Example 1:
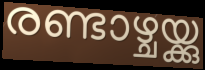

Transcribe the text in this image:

രണ്ടാഴ്ചയ്ക്കു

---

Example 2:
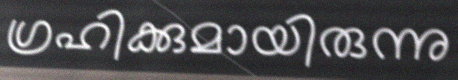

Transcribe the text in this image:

ഗ്രഹിക്കുമായിരുന്നു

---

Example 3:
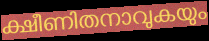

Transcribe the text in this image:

ക്ഷീണിതനാവുകയും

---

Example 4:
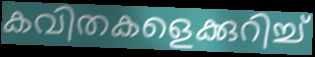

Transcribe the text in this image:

കവിതകളെക്കുറിച്ച്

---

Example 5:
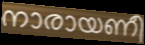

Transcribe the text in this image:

നാരായണീ